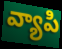
వ్యాపి